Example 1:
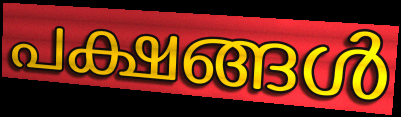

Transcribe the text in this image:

പക്ഷങ്ങൾ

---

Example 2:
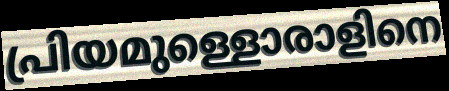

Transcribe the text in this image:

പ്രിയമുള്ളൊരാളിനെ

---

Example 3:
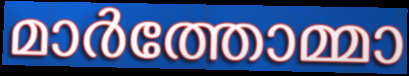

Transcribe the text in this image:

മാർത്തോമ്മാ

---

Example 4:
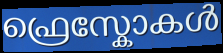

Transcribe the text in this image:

ഫ്രെസ്കോകൾ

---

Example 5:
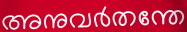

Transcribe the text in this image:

അനുവർതന്തേ